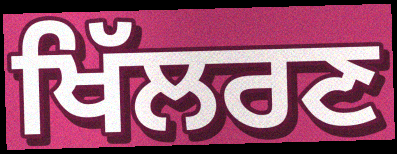
ਖਿੱਲਰਣ